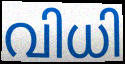
വിധി